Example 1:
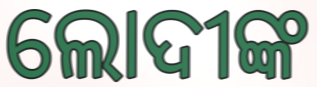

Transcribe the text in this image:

ଲୋଦୀଙ୍କ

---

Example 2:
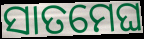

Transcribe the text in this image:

ସାତମେଘ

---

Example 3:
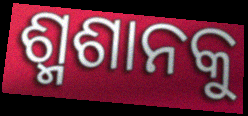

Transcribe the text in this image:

ଶ୍ମଶାନକୁ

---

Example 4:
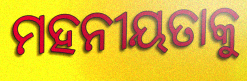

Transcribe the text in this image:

ମହନୀୟତାକୁ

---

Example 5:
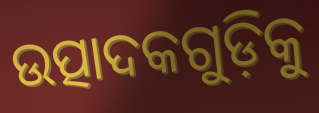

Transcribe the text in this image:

ଉତ୍ପାଦକଗୁଡ଼ିକୁ